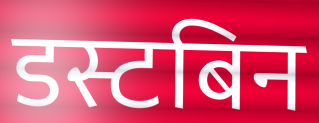
डस्टबिन